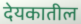
देयकातील